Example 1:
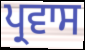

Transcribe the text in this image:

ਪ੍ਰਵਾਸ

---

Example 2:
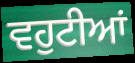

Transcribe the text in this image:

ਵਹੁਟੀਆਂ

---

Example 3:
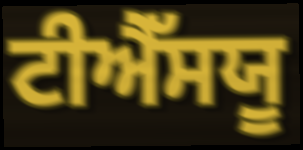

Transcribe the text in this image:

ਟੀਐੱਸਯੂ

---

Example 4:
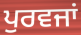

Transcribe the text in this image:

ਪੁਰਵਜਾਂ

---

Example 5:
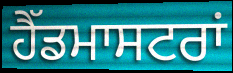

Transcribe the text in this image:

ਹੈੱਡਮਾਸਟਰਾਂ